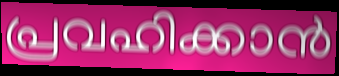
പ്രവഹിക്കാൻ